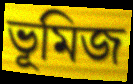
ভূমিজ